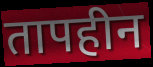
तापहीन